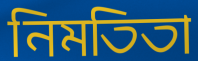
নিমতিতা